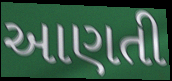
આણતી